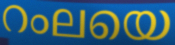
റംലയെ